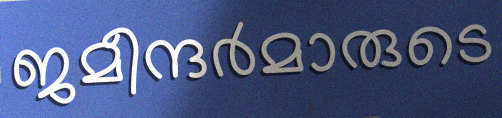
ജമീന്ദർമാരുടെ